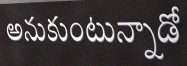
అనుకుంటున్నాడో